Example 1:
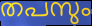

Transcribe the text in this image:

തപസും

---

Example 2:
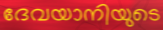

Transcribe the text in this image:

ദേവയാനിയുടെ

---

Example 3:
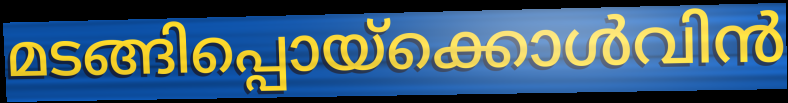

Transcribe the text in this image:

മടങ്ങിപ്പൊയ്ക്കൊൾവിൻ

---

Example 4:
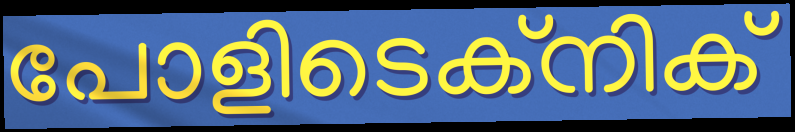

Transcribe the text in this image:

പോളിടെക്നിക്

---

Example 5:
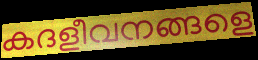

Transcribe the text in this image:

കദളീവനങ്ങളെ